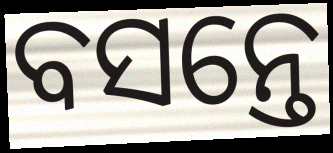
ବସନ୍ତେ